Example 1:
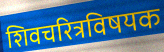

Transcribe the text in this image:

शिवचरित्रविषयक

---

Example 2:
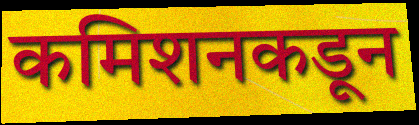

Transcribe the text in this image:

कमिशनकडून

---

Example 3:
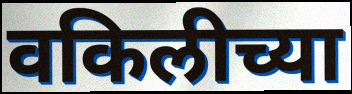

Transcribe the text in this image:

वकिलीच्या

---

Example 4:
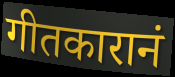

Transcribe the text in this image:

गीतकारानं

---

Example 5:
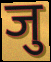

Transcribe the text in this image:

जु